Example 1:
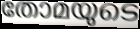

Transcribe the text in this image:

തോമയുടെ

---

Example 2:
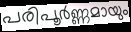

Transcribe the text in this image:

പരിപൂർണ്ണമായും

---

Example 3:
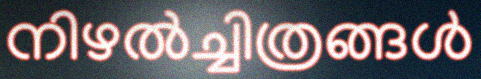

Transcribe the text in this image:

നിഴൽച്ചിത്രങ്ങൾ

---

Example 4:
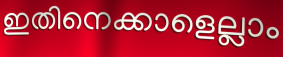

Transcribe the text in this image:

ഇതിനെക്കാളെല്ലാം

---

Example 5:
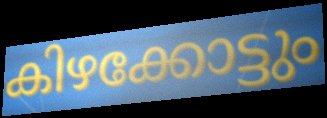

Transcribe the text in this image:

കിഴക്കോട്ടും